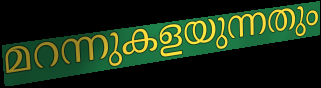
മറന്നുകളയുന്നതും